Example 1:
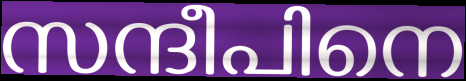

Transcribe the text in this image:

സന്ദീപിനെ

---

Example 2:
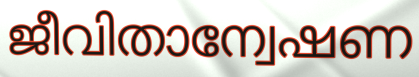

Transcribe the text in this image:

ജീവിതാന്വേഷണ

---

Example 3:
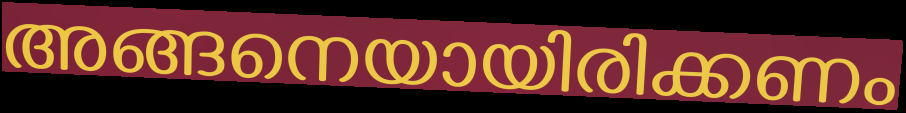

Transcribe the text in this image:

അങ്ങനെയായിരിക്കണം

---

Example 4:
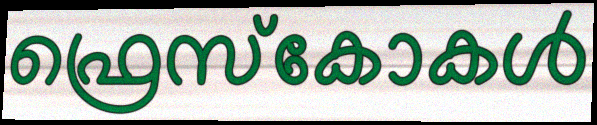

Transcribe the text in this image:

ഫ്രെസ്കോകൾ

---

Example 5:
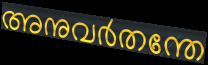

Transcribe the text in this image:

അനുവർതന്തേ